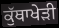
ਕੁੱਥਾਖੇੜੀ